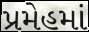
પ્રમેહમાં